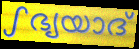
ഽഭ്യയാദ്